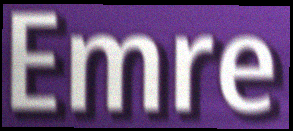
Emre